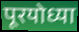
पूरयोध्या